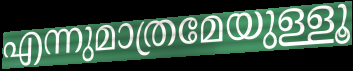
എന്നുമാത്രമേയുള്ളൂ